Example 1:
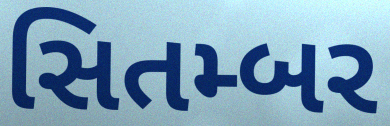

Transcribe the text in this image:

સિતમ્બર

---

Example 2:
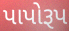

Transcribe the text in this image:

પાપોરૂપ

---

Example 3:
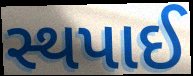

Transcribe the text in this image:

સ્થપાઈ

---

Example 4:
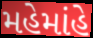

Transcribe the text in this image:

મહેમાંહે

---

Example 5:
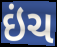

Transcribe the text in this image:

ઇંચ